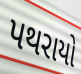
પથરાયો